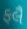
ફલૈ